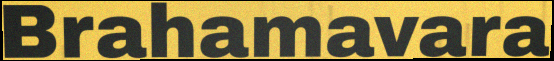
Brahamavara